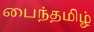
பைந்தமிழ்